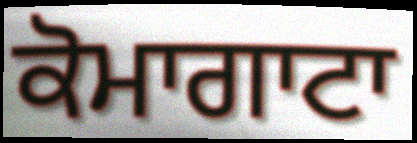
ਕੋਮਾਗਾਟਾ